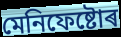
মেনিফেষ্টোৰ